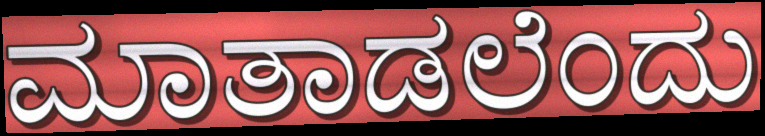
ಮಾತಾಡಲೆಂದು